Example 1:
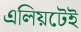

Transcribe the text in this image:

এলিয়টেই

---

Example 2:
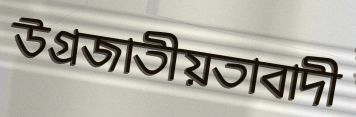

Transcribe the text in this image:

উগ্ৰজাতীয়তাবাদী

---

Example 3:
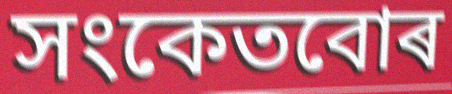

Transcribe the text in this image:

সংকেতবোৰ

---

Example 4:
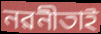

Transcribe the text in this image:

নৱনীতাই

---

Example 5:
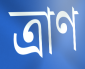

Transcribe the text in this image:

ত্ৰাণ